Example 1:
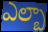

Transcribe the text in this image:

ఎల్బా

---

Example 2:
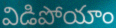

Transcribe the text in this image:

విడిపోయాం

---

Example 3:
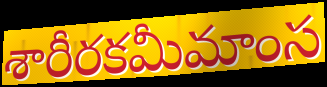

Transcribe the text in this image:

శారీరకమీమాంస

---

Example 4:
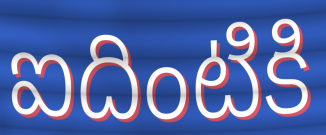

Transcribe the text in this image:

ఐదింటికి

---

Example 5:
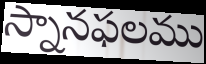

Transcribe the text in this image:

స్నానఫలము